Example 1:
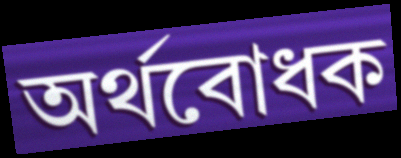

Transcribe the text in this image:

অর্থবোধক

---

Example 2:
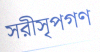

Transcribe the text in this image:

সরীসৃপগণ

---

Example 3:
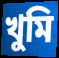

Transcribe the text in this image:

খুমি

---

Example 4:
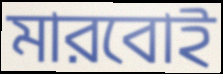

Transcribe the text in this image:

মারবোই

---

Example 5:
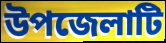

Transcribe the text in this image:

উপজেলাটি